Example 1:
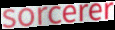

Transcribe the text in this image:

sorcerer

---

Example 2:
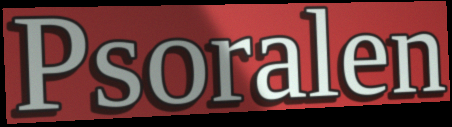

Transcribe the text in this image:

Psoralen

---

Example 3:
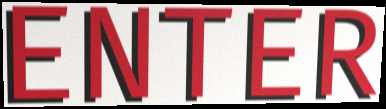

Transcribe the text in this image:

ENTER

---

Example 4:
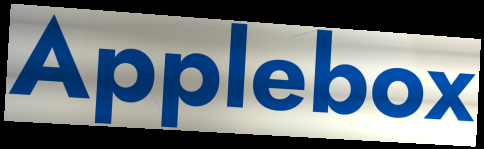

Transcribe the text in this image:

Applebox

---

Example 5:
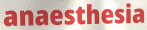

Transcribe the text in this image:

anaesthesia